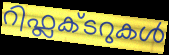
റിഫ്ലക്ടറുകൾ